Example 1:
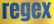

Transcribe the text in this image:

regex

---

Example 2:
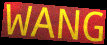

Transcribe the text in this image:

WANG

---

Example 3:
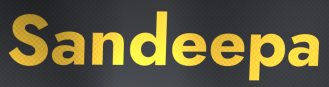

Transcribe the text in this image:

Sandeepa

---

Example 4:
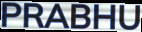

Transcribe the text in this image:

PRABHU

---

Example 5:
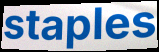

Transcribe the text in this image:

staples